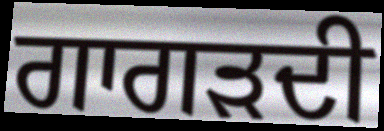
ਗਾਗੜਦੀ